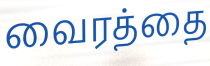
வைரத்தை